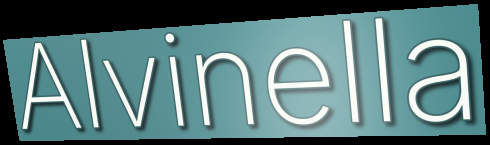
Alvinella